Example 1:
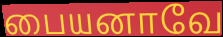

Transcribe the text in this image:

பையனாவே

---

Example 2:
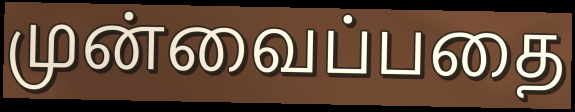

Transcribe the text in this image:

முன்வைப்பதை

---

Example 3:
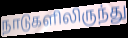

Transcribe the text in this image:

நாடுகளிலிருந்து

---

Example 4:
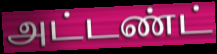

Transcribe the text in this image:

அட்டண்ட்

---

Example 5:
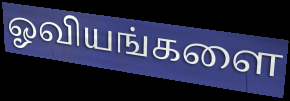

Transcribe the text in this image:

ஓவியங்களை